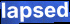
lapsed